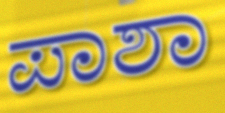
ಪಾಶಾ